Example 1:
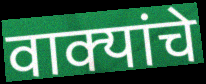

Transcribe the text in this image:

वाक्यांचे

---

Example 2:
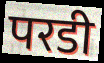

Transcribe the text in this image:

परडी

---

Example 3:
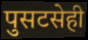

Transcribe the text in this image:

पुसटसेही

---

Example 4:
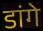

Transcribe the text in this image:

डांगे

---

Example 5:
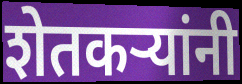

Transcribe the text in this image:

शेतकऱ्यांनी